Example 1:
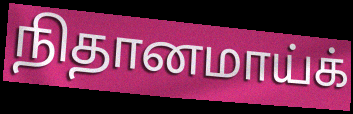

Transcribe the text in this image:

நிதானமாய்க்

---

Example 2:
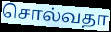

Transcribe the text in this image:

சொல்வதா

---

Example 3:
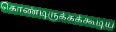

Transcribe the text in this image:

கொண்டிருக்கக்கூடிய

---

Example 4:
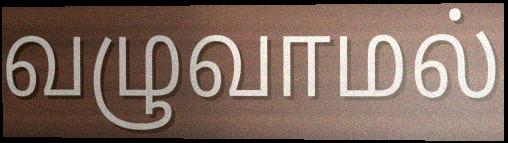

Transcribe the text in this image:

வழுவாமல்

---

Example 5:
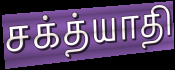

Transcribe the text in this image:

சக்த்யாதி